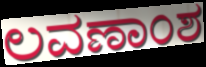
ಲವಣಾಂಶ